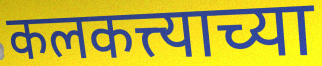
कलकत्त्याच्या